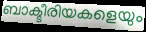
ബാക്ടീരിയകളെയും